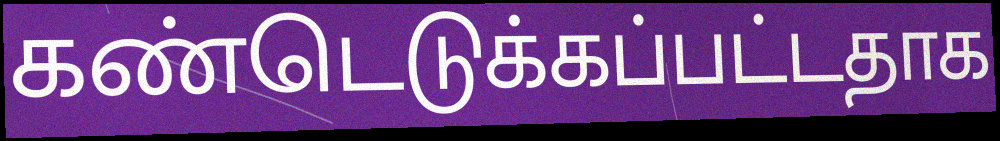
கண்டெடுக்கப்பட்டதாக